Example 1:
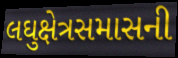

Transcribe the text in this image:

લઘુક્ષેત્રસમાસની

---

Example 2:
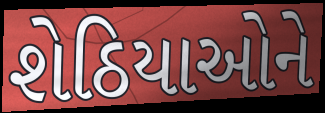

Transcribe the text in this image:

શેઠિયાઓને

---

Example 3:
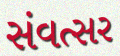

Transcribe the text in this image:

સંવત્સર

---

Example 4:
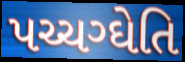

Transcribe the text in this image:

પચ્ચગ્ઘેતિ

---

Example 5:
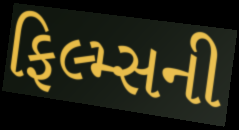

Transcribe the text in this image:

ફિલ્મ્સની